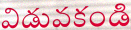
విడువకండి